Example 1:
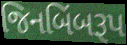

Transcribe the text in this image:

જિનબિંબરૂપ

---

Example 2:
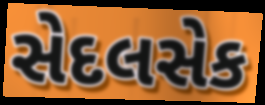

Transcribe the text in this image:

સેદલસેક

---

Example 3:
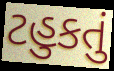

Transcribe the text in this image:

ટહુકતું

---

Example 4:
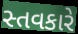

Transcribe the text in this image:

સ્તવકારે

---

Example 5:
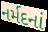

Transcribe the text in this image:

નર્મદનાં